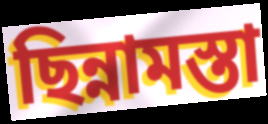
ছিন্নামস্তা